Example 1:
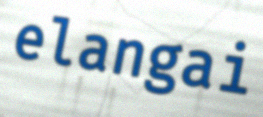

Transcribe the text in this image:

elangai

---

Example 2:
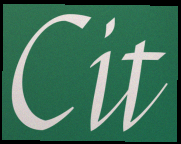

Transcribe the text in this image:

Cit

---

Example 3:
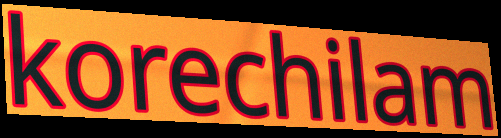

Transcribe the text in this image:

korechilam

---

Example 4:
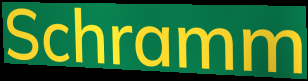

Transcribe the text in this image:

Schramm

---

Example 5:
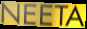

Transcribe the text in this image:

NEETA